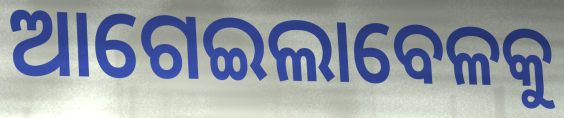
ଆଗେଇଲାବେଳକୁ